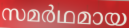
സമർഥമായ